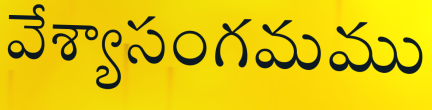
వేశ్యాసంగమము